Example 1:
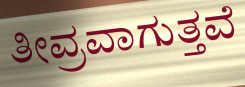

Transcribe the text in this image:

ತೀವ್ರವಾಗುತ್ತವೆ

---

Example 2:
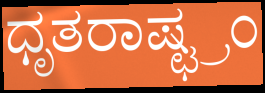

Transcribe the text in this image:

ಧೃತರಾಷ್ಟ್ರಂ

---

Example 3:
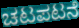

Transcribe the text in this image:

ಚಟಪಟನೆ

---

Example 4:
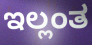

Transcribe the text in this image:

ಇಲ್ಲಂತ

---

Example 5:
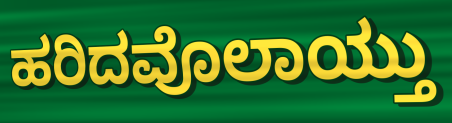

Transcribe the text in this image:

ಹರಿದವೊಲಾಯ್ತು